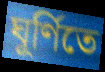
ঘূর্ণিতে